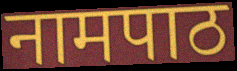
नामपाठ